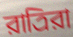
রাত্রিরা